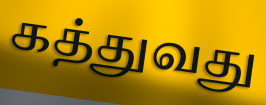
கத்துவது